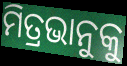
ମିତ୍ରଭାନୁକୁ